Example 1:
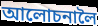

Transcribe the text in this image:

আলোচনালৈ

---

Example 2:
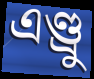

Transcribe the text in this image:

এণ্ড্ৰু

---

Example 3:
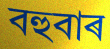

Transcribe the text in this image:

বহুবাৰ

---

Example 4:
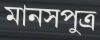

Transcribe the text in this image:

মানসপুত্ৰ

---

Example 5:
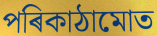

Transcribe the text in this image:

পৰিকাঠামোত